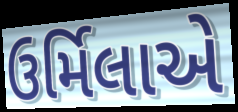
ઉર્મિલાએ